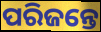
ପରିଜନ୍ତେ